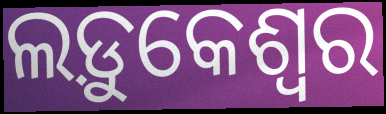
ଲଡ଼ୁକେଶ୍ୱର